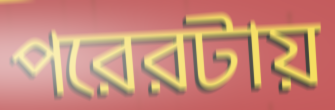
পরেরটায়